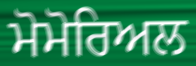
ਮੋਮੋਰਿਅਲ